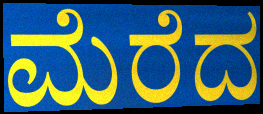
ಮೆರೆದ